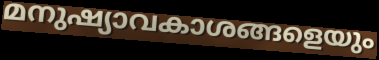
മനുഷ്യാവകാശങ്ങളെയും